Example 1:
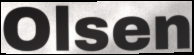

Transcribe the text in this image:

Olsen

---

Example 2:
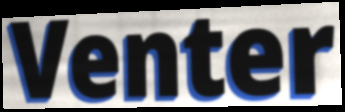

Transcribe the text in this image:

Venter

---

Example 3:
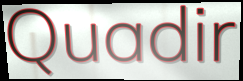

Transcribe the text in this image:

Quadir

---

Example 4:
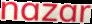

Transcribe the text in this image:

nazar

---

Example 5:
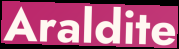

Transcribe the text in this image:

Araldite